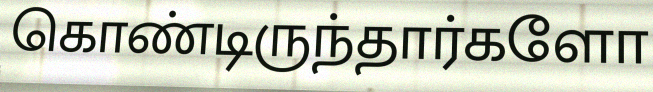
கொண்டிருந்தார்களோ